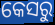
କେସରୁ